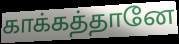
காக்கத்தானே